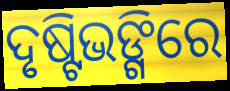
ଦୃଷ୍ଟିଭଙ୍ଗିରେ